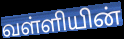
வள்ளியின்